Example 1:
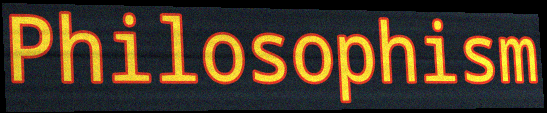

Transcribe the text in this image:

Philosophism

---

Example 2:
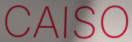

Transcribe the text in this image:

CAISO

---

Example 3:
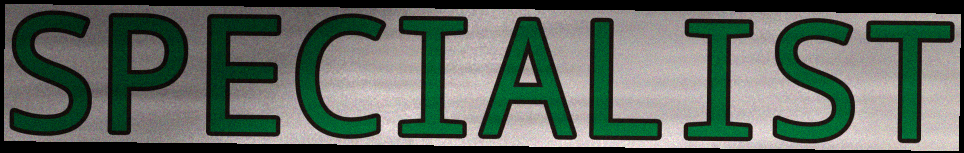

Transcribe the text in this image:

SPECIALIST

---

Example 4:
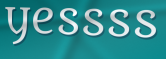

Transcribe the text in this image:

yessss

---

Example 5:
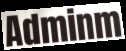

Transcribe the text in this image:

Adminm